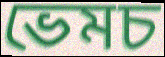
ভেমচ